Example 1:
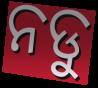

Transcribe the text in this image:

ନଡୁ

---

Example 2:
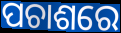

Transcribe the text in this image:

ପଚାଶରେ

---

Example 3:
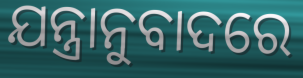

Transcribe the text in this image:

ଯନ୍ତ୍ରାନୁବାଦରେ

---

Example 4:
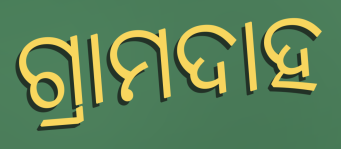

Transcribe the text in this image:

ଗ୍ରାମଦାହ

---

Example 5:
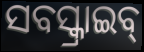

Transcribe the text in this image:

ସବସ୍କ୍ରାଇବ୍